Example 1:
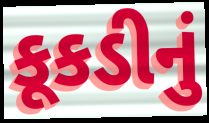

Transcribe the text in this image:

કૂકડીનું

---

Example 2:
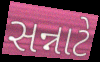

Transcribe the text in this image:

સન્નાટે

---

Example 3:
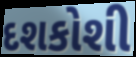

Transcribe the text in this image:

દશકોશી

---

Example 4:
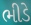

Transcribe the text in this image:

ભીડે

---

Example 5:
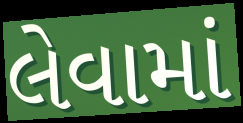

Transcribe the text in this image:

લેવામાં